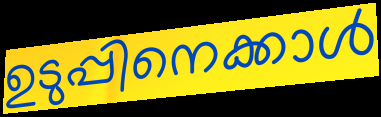
ഉടുപ്പിനെക്കാൾ